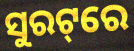
ସୁରଟ୍‌ରେ